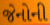
જેનોની